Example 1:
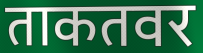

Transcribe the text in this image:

ताकतवर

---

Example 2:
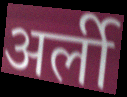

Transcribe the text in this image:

अर्ली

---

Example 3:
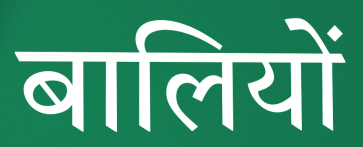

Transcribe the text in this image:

बालियों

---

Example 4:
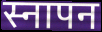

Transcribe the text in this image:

स्नापन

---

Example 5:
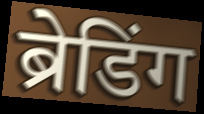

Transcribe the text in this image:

ब्रेडिंग